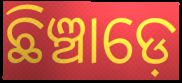
ଛିଞ୍ଚାଡ଼େ